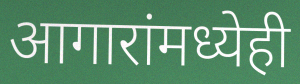
आगारांमध्येही